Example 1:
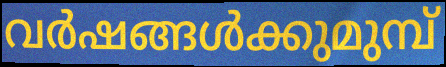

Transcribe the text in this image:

വർഷങ്ങൾക്കുമുമ്പ്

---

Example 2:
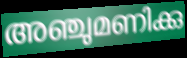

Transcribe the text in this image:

അഞ്ചുമണിക്കു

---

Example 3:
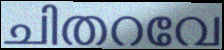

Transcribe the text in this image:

ചിതറവേ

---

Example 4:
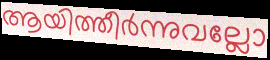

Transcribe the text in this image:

ആയിത്തീർന്നുവല്ലോ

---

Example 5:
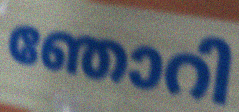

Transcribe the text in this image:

ഞോറി